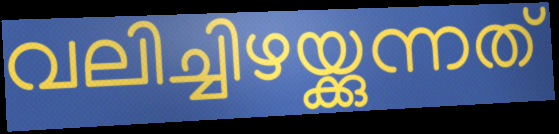
വലിച്ചിഴയ്ക്കുന്നത്